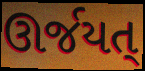
ઊર્જયત્